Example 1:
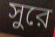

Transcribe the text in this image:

সুরে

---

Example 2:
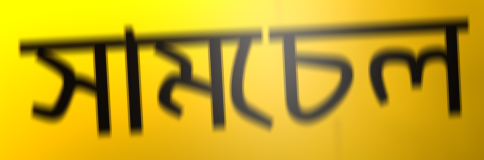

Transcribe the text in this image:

সামচেল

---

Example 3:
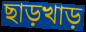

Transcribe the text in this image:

ছাড়খাড়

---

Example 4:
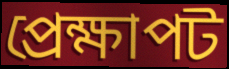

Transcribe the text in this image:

প্রেক্ষাপট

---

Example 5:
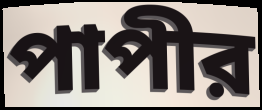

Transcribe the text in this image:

পাপীর